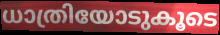
ധാത്രിയോടുകൂടെ